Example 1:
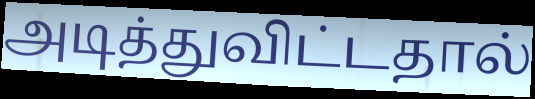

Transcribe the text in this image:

அடித்துவிட்டதால்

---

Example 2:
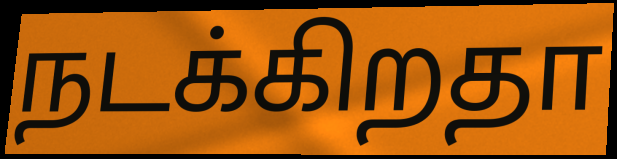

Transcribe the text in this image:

நடக்கிறதா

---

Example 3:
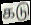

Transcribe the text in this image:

கடு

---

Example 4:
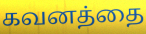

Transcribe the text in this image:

கவனத்தை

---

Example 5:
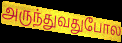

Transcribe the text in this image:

அருந்துவதுபோல